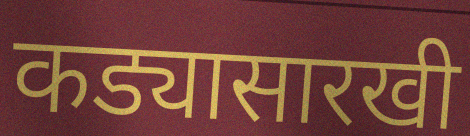
कड्यासारखी